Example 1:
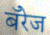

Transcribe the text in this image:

बॅरेज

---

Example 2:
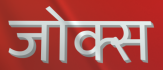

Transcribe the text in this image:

जोक्स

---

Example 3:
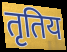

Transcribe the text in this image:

तृतिय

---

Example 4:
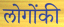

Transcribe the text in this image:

लोगोंकी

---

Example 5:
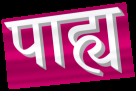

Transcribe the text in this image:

पाह्य